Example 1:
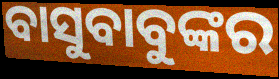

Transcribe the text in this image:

ବାସୁବାବୁଙ୍କର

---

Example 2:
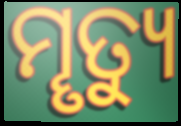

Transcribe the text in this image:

ମୄତ୍ୟୁ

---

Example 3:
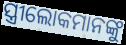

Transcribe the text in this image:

ସ୍ତ୍ରୀଲୋକମାନଙ୍କୁ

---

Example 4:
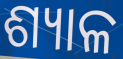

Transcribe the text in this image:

ଶ୍ୟାଳ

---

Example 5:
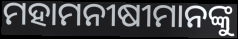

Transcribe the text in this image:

ମହାମନୀଷୀମାନଙ୍କୁ